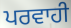
ਪਰਵਾਹੀ